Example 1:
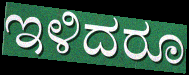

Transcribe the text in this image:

ಇಳಿದರೂ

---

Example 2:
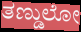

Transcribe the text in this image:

ತಣ್ಡುಲೋ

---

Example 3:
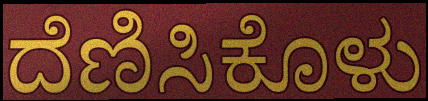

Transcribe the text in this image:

ದೆಣಿಸಿಕೊಳು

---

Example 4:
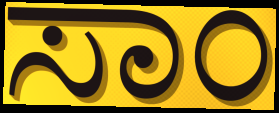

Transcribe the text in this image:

ಸಾಂ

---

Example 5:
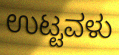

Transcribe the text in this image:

ಉಟ್ಟವಳು